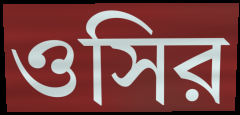
ওসির